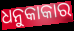
ଧନୁକାକାର